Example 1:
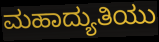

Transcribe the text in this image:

ಮಹಾದ್ಯುತಿಯು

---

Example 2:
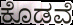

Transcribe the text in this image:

ಕೊಡವೆ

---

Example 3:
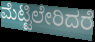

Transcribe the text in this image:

ಮೆಟ್ಟಿಲೇರಿದರೆ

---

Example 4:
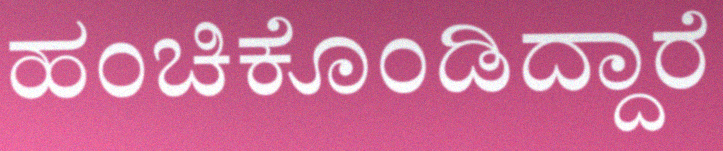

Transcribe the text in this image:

ಹಂಚಿಕೊಂಡಿದ್ದಾರೆ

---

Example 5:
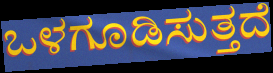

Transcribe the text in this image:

ಒಳಗೂಡಿಸುತ್ತದೆ